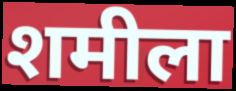
शमीला